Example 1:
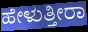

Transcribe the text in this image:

ಹೇಳುತ್ತೀರಾ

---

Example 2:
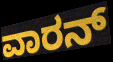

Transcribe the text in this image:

ವಾರನ್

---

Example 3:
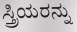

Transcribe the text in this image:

ಸ್ತ್ರಿಯರನ್ನು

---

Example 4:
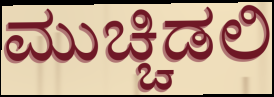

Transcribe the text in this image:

ಮುಚ್ಚಿಡಲಿ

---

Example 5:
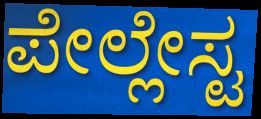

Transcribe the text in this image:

ಪೇಲ್ಲೇಸ್ಟ